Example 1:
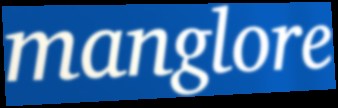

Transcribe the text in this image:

manglore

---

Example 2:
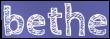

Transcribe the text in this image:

bethe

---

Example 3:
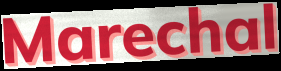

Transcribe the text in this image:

Marechal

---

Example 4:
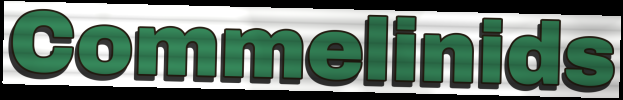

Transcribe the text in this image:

Commelinids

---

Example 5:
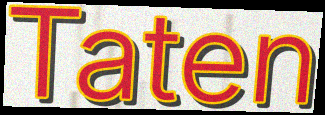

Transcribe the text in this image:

Taten